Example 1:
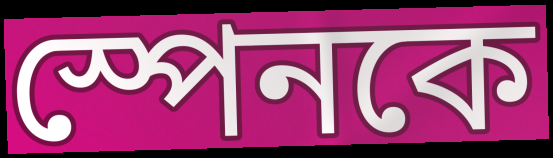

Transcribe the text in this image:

স্পেনকে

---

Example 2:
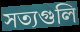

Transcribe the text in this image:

সত্যগুলি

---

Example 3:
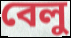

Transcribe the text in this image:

বেলু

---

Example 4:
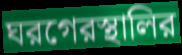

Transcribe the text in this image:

ঘরগেরস্থালির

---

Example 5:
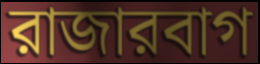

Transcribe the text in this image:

রাজারবাগ